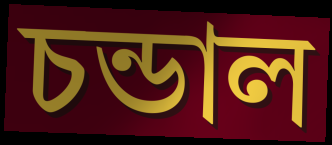
চন্ডাল